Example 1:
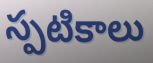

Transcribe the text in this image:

స్పటికాలు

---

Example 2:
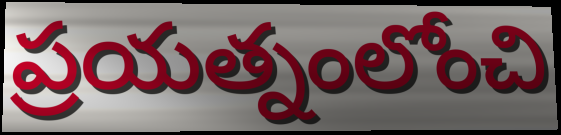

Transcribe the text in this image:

ప్రయత్నంలోంచి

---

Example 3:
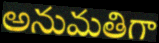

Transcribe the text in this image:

అనుమతిగా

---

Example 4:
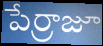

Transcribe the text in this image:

పేర్రాజూ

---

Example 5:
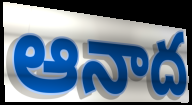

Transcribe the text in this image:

ఆనాద